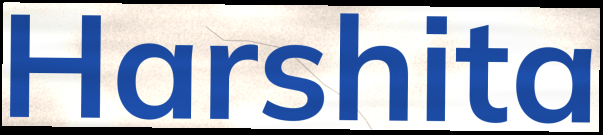
Harshita